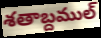
శతాబ్దముల్